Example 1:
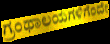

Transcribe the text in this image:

ಗ್ರಂಥಾಲಯಗಳಿಗೆಂದೇ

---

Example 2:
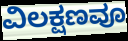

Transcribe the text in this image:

ವಿಲಕ್ಷಣವೂ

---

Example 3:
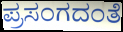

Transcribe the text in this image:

ಪ್ರಸಂಗದಂತೆ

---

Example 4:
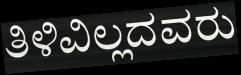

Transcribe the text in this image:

ತಿಳಿವಿಲ್ಲದವರು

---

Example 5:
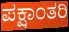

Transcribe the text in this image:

ಪಕ್ಷಾಂತರಿ